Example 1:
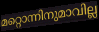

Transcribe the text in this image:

മറ്റൊന്നിനുമാവില്ല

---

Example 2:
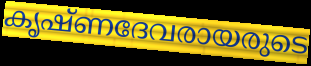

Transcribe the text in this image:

കൃഷ്ണദേവരായരുടെ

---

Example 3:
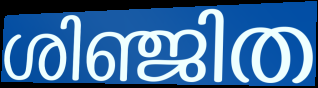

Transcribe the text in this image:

ശിഞ്ജിത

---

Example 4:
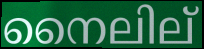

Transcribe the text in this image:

നൈലില്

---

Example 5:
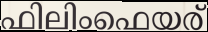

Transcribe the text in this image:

ഫിലിംഫെയര്